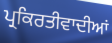
ਪ੍ਰਕਿਰਤੀਵਾਦੀਆਂ